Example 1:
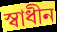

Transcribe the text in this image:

স্ৱাধীন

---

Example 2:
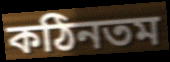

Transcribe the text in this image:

কঠিনতম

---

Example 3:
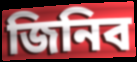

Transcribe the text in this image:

জিনিব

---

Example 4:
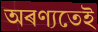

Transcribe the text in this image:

অৰণ্যতেই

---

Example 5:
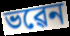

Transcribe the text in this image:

ভৱেন